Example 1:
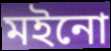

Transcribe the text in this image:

মইনো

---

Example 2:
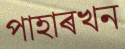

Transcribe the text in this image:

পাহাৰখন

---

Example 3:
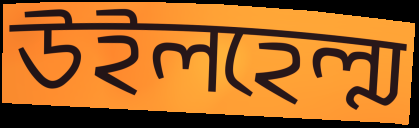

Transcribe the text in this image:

উইলহেল্ম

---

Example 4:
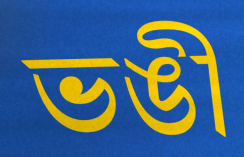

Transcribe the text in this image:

ভঙী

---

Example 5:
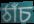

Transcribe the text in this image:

ঠাঁচ